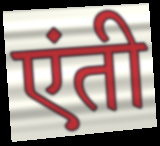
एंती